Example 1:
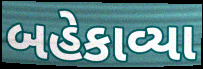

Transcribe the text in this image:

બહેકાવ્યા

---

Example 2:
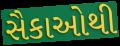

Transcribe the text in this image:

સૈકાઓથી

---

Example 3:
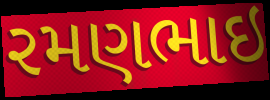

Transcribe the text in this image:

રમણભાઇ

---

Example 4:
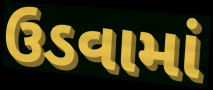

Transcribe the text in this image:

ઉડવામાં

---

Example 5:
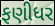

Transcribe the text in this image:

ફણીધર